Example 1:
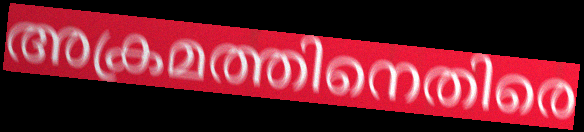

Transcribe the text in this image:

അക്രമത്തിനെതിരെ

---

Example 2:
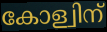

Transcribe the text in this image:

കോള്വിന്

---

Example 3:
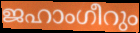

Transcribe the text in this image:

ജഹാംഗീറും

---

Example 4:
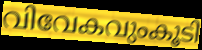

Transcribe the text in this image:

വിവേകവുംകൂടി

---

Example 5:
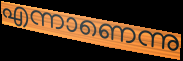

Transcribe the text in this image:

എന്നാണെന്നു